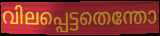
വിലപ്പെട്ടതെന്തോ